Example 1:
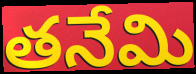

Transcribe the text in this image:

తనేమి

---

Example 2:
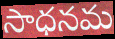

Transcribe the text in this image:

సాధనమ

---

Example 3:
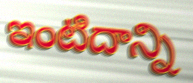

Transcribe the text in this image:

ఇంటిదాన్ని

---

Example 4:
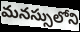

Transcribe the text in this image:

మనస్సులోని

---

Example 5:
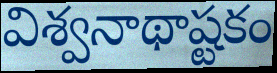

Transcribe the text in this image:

విశ్వనాథాష్టకం